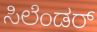
ಸಿಲೆಂಡರ್